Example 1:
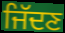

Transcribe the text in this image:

ਜਿੱਦਣ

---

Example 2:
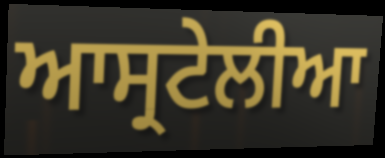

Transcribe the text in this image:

ਆਸ੍ਰਟੇਲੀਆ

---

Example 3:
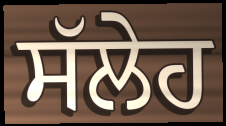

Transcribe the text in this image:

ਸੱਲੇਹ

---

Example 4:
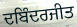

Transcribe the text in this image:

ਦਬਿੰਦਰਜੀਤ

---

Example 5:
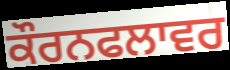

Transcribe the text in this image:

ਕੌਰਨਫਲਾਵਰ